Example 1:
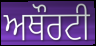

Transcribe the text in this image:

ਅਥੌਰਟੀ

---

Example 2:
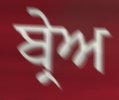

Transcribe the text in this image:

ਬ੍ਰੇਅ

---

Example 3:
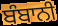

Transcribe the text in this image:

ਬੰਬਾਨੀ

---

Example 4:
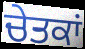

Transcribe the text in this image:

ਚੇਤਕਾਂ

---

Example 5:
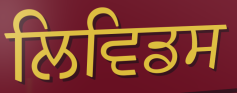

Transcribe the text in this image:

ਲਿਵਿਡਸ